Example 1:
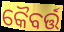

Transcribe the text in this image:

କୈବର୍ତ୍ତ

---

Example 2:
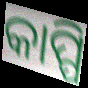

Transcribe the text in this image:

କାପ୍ପି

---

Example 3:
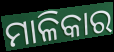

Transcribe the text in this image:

ମାଳିକାର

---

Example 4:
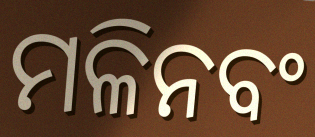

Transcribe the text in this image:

ମଳିନବଂ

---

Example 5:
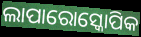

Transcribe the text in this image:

ଲାପାରୋସ୍କୋପିକ